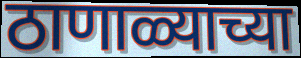
ठाणाळ्याच्या